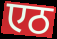
एठ